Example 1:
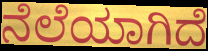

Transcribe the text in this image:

ನೆಲೆಯಾಗಿದೆ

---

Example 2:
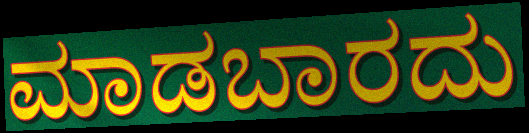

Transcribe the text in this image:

ಮಾಡಬಾರದು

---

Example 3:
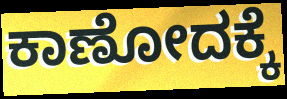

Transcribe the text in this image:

ಕಾಣೋದಕ್ಕೆ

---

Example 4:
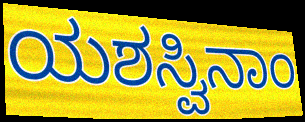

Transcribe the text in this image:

ಯಶಸ್ವಿನಾಂ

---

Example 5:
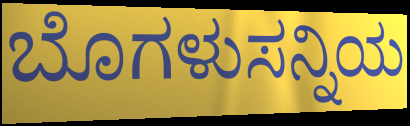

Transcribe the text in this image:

ಬೊಗಳುಸನ್ನಿಯ